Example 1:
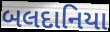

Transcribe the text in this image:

બલદાનિયા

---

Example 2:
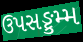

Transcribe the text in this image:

ઉપસઙ્કમ્મ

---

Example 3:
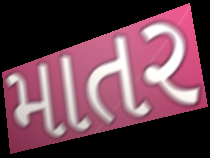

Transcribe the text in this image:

માતર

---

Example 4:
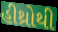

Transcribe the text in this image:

હીથ્રોથી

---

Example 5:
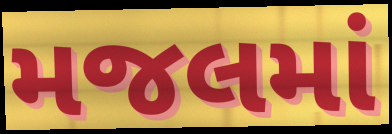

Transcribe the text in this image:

મજલમાં